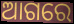
ଆଗରେ